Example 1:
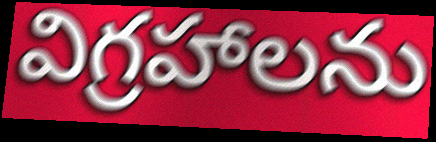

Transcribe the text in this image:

విగ్రహాలను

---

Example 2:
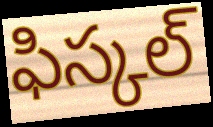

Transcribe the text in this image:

ఫిస్కల్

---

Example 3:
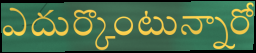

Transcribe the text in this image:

ఎదుర్కొంటున్నారో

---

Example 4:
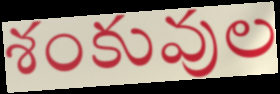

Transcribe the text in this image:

శంకువుల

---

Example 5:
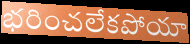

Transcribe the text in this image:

భరించలేకపోయా